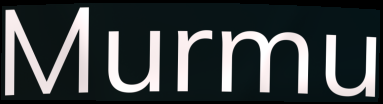
Murmu